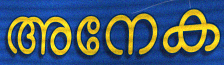
അനേക